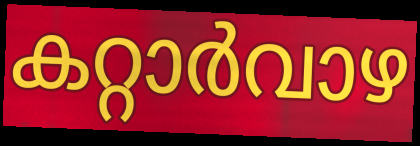
കറ്റാർവാഴ